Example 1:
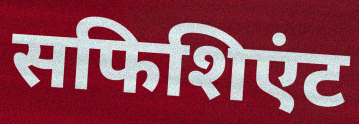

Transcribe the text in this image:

सफिशिएंट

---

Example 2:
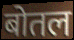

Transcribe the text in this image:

बोतल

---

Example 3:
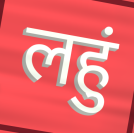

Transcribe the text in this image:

लहुं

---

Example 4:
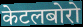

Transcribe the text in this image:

केटलबोरो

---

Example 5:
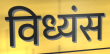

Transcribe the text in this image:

विध्यंस